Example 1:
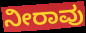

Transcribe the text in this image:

ನೀರಾವು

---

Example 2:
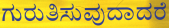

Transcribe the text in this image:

ಗುರುತಿಸುವುದಾದರೆ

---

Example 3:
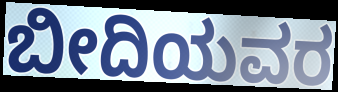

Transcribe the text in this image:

ಬೀದಿಯವರ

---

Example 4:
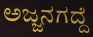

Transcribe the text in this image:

ಅಜ್ಜನಗದ್ದೆ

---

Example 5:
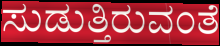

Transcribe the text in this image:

ಸುಡುತ್ತಿರುವಂತೆ